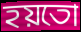
হয়তো